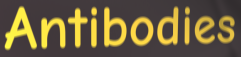
Antibodies